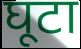
घूटा